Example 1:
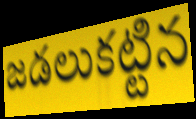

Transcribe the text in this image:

జడలుకట్టిన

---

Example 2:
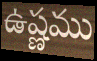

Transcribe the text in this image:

ఉష్ణము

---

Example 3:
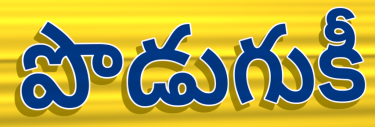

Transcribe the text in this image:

పొడుగుకీ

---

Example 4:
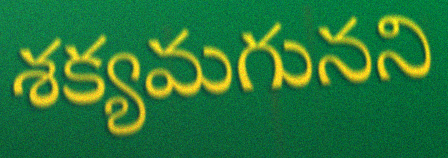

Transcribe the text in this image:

శక్యమగునని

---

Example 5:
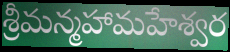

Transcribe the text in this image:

శ్రీమన్మహామహేశ్వర